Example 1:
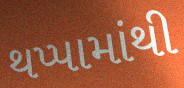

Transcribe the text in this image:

થપ્પામાંથી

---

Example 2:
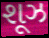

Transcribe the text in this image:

શૂઝ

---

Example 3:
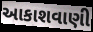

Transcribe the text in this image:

આકાશવાણી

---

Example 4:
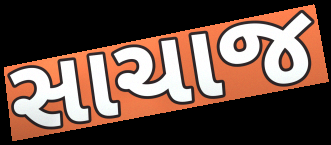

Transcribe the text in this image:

સાચાજ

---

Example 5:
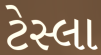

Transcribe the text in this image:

ટેસ્લા